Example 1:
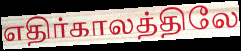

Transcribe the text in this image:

எதிர்காலத்திலே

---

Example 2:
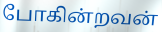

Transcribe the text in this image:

போகின்றவன்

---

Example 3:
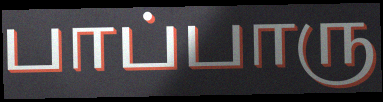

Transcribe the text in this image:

பாப்பாரு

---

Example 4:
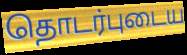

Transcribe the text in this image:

தொடர்புடைய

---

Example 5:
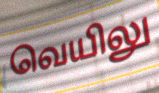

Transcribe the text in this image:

வெயிலு